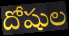
దోషుల